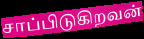
சாப்பிடுகிறவன்